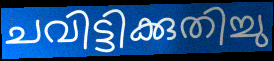
ചവിട്ടിക്കുതിച്ചു